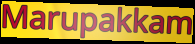
Marupakkam